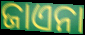
ଜାଏନା